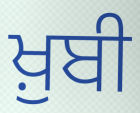
ਖ਼ੁਬੀ